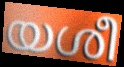
യശീ